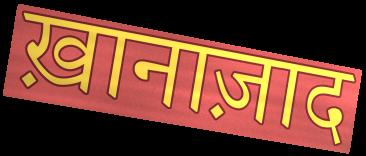
ख़ानाज़ाद